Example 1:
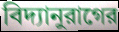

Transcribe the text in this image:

বিদ্যানুরাগের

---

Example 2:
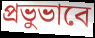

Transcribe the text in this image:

প্রভুভাবে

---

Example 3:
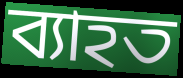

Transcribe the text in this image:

ব্যাহত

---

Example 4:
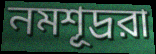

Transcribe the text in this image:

নমশূদ্ররা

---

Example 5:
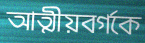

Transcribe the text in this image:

আত্মীয়বর্গকে